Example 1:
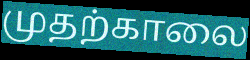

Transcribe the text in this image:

முதற்காலை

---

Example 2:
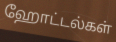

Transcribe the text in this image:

ஹோட்டல்கள்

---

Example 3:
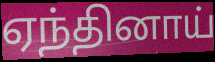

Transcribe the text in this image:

ஏந்தினாய்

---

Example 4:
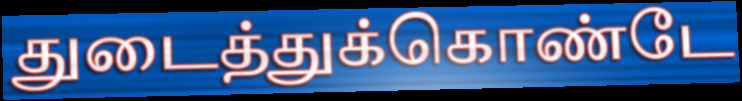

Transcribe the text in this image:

துடைத்துக்கொண்டே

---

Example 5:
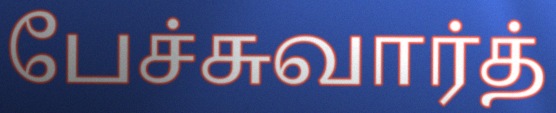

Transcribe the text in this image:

பேச்சுவார்த்